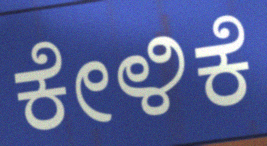
ಕೇಳಿಕೆ